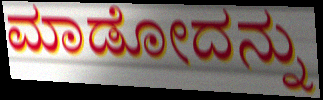
ಮಾಡೋದನ್ನು